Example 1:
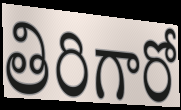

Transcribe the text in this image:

తిరిగారో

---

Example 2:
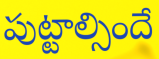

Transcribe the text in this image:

పుట్టాల్సిందే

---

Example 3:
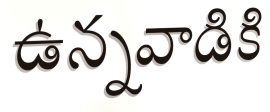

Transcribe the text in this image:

ఉన్నవాడికి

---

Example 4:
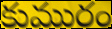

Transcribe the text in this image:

కుమురం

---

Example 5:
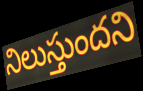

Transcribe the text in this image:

నిలుస్తుందని